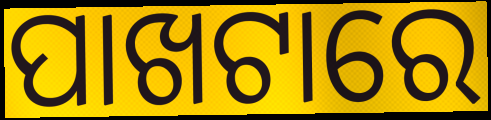
ପାଖଟାରେ